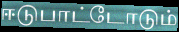
ஈடுபாட்டோடும்